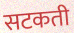
सटकती